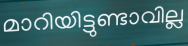
മാറിയിട്ടുണ്ടാവില്ല